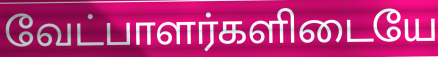
வேட்பாளர்களிடையே